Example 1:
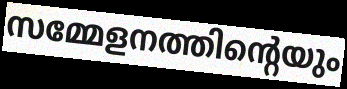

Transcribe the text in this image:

സമ്മേളനത്തിന്റെയും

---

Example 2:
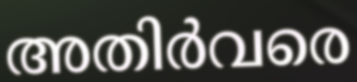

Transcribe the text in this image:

അതിർവരെ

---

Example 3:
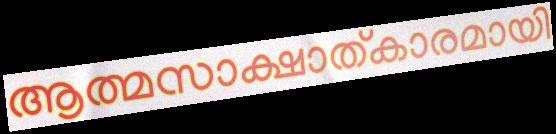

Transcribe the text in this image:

ആത്മസാക്ഷാത്കാരമായി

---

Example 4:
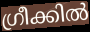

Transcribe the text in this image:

ഗ്രീക്കിൽ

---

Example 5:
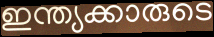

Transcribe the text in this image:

ഇന്ത്യക്കാരുടെ